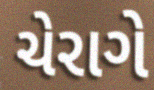
ચેરાગે